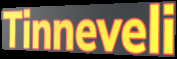
Tinneveli